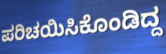
ಪರಿಚಯಿಸಿಕೊಂಡಿದ್ದ